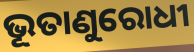
ଭୂତାଣୁରୋଧୀ